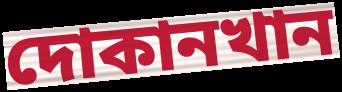
দোকানখান